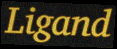
Ligand